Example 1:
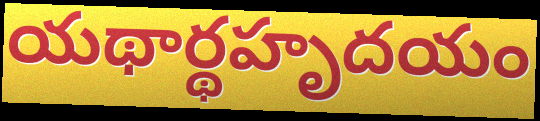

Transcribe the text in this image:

యథార్థహృదయం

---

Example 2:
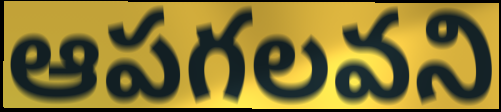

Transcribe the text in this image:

ఆపగలవని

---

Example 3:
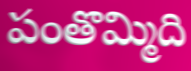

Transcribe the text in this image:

పంతొమ్మిది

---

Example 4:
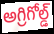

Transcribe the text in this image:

అగ్రిగోల్డ్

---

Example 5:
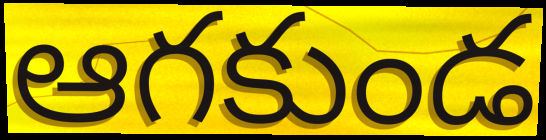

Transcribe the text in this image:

ఆగకుండ